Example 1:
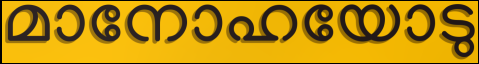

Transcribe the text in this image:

മാനോഹയോടു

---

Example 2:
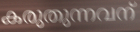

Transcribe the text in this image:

കരുതുന്നവന്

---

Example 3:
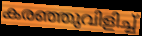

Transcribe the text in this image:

കരഞ്ഞുവിളിച്ച്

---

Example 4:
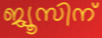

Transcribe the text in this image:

ജ്യൂസിന്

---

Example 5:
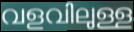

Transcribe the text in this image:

വളവിലുള്ള